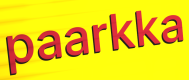
paarkka